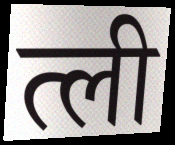
त्ली